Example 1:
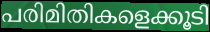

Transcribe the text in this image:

പരിമിതികളെക്കൂടി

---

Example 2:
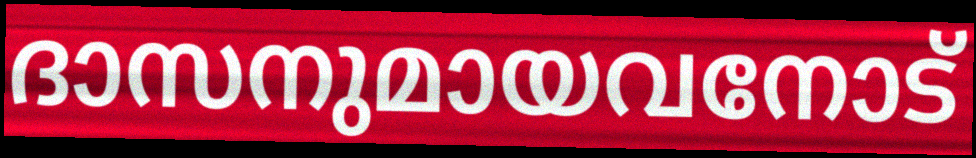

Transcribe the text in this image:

ദാസനുമായവനോട്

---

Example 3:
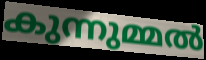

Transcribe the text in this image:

കുന്നുമ്മൽ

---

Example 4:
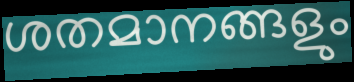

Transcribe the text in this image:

ശതമാനങ്ങളും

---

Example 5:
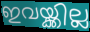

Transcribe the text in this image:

ഇവയ്ക്കില്ല